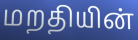
மறதியின்